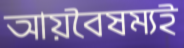
আয়বৈষম্যই